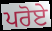
ਪਰੋਏ